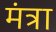
मंत्रा